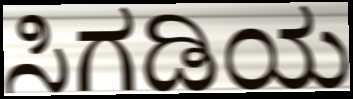
ಸಿಗಡಿಯ